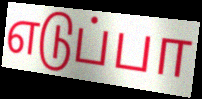
எடுப்பா